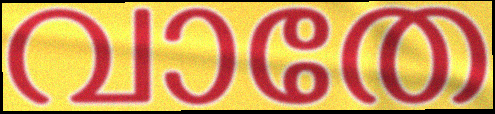
വാതേ